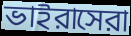
ভাইরাসেরা